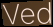
Ved